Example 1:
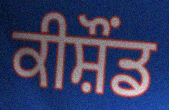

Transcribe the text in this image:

ਕੀਸ਼ੌਂਡ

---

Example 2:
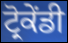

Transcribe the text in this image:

ਟ੍ਰੋਕੇਂਡੀ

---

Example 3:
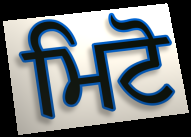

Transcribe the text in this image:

ਮਿਟੋ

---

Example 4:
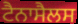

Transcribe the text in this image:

ਟੈਨਾਸੈਲਸ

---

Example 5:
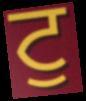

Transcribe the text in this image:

ਟੁ